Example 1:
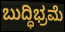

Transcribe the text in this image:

ಬುದ್ಧಿಭ್ರಮೆ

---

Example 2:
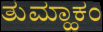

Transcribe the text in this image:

ತುಮ್ಹಾಕಂ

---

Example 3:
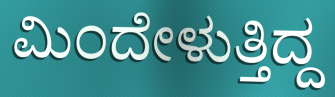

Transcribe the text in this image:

ಮಿಂದೇಳುತ್ತಿದ್ದ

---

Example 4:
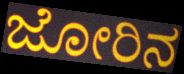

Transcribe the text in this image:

ಜೋರಿನ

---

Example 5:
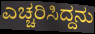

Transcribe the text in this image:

ಎಚ್ಚರಿಸಿದ್ದನು